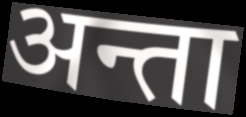
अन्ता